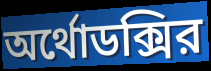
অর্থোডক্সির